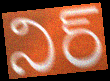
నిర్